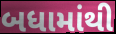
બધામાંથી